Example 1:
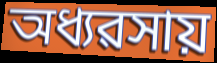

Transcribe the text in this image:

অধ্যৱসায়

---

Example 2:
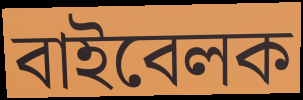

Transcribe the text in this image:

বাইবেলক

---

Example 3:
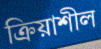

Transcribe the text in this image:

ক্ৰিয়াশীল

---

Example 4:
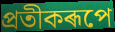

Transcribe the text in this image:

প্ৰতীকৰূপে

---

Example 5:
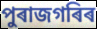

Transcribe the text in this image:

পুৰাজগৰিৰ